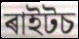
ৰাইটচ